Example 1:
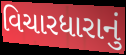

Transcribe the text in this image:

વિચારધારાનું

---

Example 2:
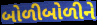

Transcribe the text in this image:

બોળીબોળીને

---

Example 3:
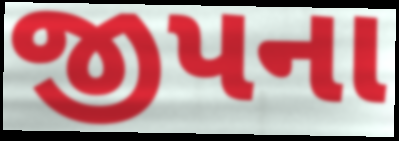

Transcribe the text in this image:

જીપના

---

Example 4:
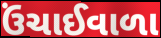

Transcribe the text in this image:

ઉંચાઈવાળા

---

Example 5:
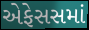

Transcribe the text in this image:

એફેસસમાં